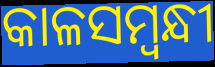
କାଳସମ୍ଵନ୍ଧୀ